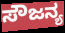
ಸೌಜನ್ಯ